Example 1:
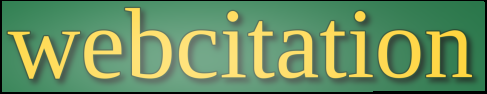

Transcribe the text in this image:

webcitation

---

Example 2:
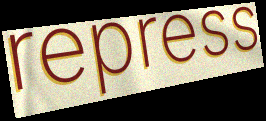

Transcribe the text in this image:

repress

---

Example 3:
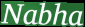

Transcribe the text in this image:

Nabha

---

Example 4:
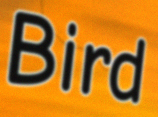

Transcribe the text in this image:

Bird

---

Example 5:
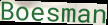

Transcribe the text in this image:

Boesman